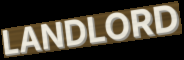
LANDLORD